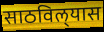
साठविल्यास